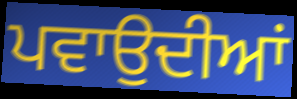
ਪਵਾਉਦੀਆਂ